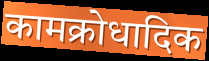
कामक्रोधादिक